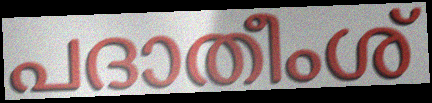
പദാതീംശ്